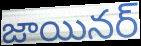
జాయినర్